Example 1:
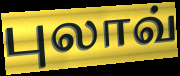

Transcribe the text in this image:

புலாவ்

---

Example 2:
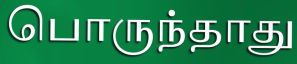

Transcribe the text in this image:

பொருந்தாது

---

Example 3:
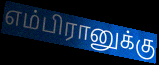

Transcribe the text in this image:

எம்பிரானுக்கு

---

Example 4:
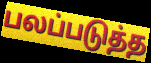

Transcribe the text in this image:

பலப்படுத்த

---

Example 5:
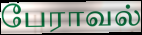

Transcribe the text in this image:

பேராவல்